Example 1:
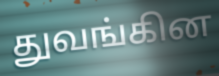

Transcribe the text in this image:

துவங்கின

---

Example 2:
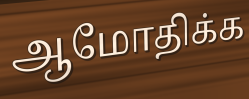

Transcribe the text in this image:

ஆமோதிக்க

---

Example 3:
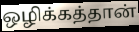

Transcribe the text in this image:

ஒழிக்கத்தான்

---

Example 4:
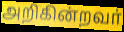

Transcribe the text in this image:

அறிகின்றவர்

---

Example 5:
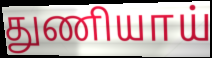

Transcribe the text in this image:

துணியாய்